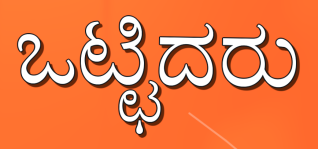
ಒಟ್ಟಿದರು